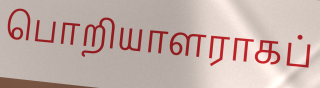
பொறியாளராகப்